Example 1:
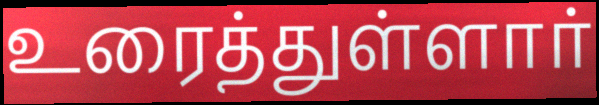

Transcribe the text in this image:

உரைத்துள்ளார்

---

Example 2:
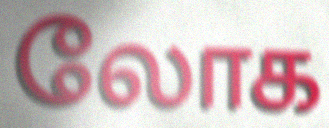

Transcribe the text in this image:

லோக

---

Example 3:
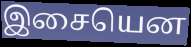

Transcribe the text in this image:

இசையென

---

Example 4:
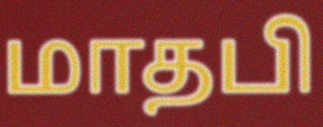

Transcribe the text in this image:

மாதபி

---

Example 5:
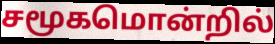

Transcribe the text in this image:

சமூகமொன்றில்